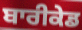
ਬਾਰੀਕੇਡ